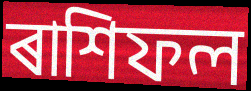
ৰাশিফল